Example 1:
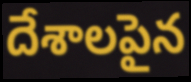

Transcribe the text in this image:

దేశాలపైన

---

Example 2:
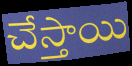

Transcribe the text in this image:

చేస్తాయి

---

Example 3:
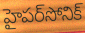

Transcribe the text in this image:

హైపర్‌సోనిక్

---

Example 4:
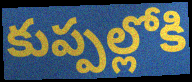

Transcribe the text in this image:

కుప్పల్లోకి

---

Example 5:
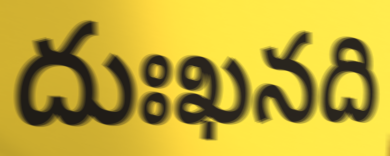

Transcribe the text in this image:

దుఃఖనది